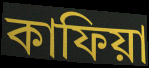
কাফিয়া